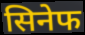
सिनेफ